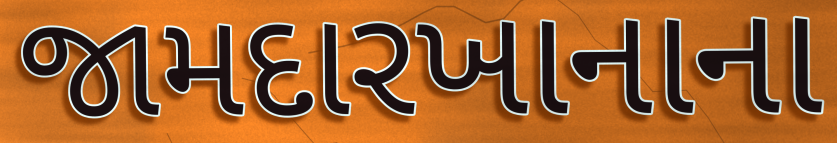
જામદારખાનાના